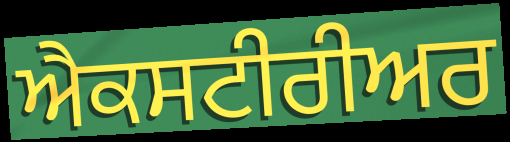
ਐਕਸਟੀਰੀਅਰ